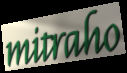
mitraho